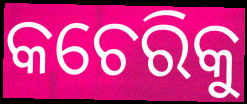
କଚେରିକୁ